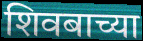
शिवबाच्या